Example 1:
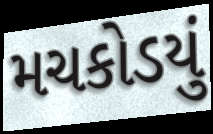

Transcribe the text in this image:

મચકોડયું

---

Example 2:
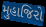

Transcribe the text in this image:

મુહાજિરો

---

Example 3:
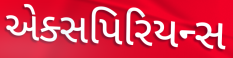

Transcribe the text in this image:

એક્સપિરિયન્સ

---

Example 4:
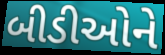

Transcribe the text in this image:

બીડીઓને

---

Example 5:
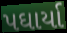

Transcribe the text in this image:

પઘાર્યા